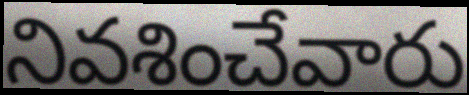
నివశించేవారు